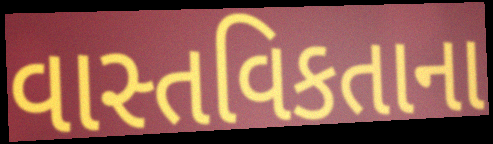
વાસ્તવિકતાના